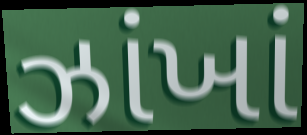
ઝાંખાં